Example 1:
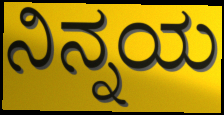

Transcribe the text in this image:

ನಿನ್ನಯ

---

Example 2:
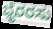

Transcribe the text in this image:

ಭೈರರಸು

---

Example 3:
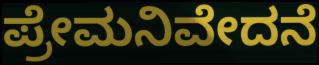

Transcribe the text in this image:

ಪ್ರೇಮನಿವೇದನೆ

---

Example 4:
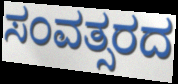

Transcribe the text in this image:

ಸಂವತ್ಸರದ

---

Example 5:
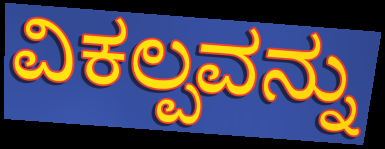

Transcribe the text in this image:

ವಿಕಲ್ಪವನ್ನು